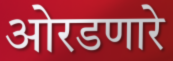
ओरडणारे